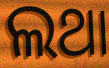
ଲଥା